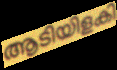
ആടിയിളകി